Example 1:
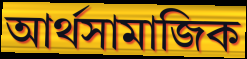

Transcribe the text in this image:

আৰ্থসামাজিক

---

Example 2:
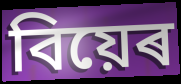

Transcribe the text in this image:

বিয়েৰ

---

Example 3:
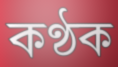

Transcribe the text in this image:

কণ্ঠক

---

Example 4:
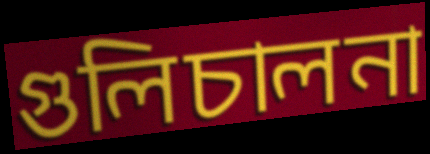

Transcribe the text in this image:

গুলিচালনা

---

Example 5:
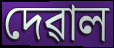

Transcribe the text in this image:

দেৱাল